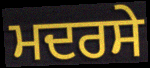
ਮਦਰਸੇ